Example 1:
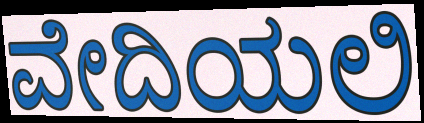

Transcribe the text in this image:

ವೇದಿಯಲಿ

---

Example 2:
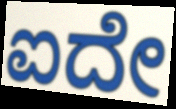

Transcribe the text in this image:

ಐದೇ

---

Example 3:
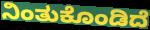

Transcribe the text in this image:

ನಿಂತುಕೊಂಡಿದೆ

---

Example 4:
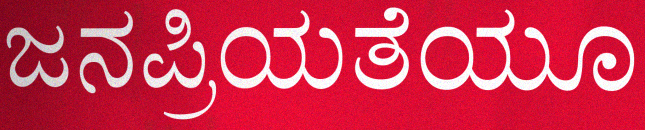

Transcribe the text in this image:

ಜನಪ್ರಿಯತೆಯೂ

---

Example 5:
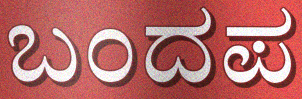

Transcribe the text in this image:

ಬಂದಪ